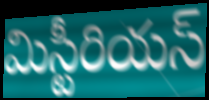
మిస్టీరియస్